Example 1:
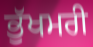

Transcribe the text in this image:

ਭੁੱਖਮਰੀ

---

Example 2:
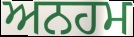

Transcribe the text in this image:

ਅਨਹਮ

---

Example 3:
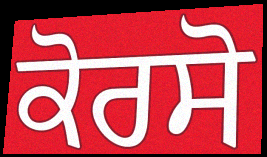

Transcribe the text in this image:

ਕੋਰਸੋ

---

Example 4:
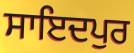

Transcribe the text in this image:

ਸਾਇਦਪੁਰ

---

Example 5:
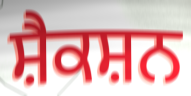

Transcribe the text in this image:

ਸ਼ੈਕਸ਼ਨ